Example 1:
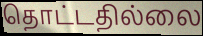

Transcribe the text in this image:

தொட்டதில்லை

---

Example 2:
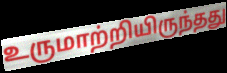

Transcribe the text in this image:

உருமாற்றியிருந்தது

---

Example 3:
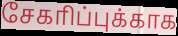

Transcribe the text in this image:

சேகரிப்புக்காக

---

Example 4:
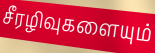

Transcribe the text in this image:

சீரழிவுகளையும்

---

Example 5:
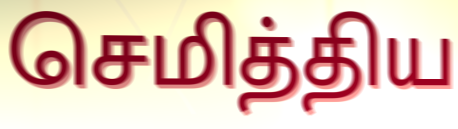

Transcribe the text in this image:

செமித்திய